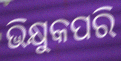
ଭିକ୍ଷୁକପରି